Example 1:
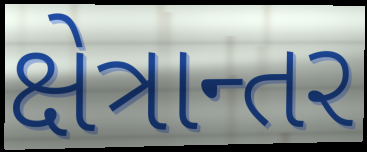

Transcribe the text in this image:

ક્ષેત્રાન્તર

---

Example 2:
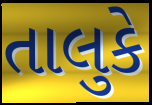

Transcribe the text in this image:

તાલુકે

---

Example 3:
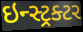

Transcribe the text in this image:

ઇન્સ્ટ્રક્ટર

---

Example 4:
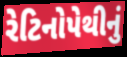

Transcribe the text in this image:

રેટિનોપેથીનું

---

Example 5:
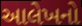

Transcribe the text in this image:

આલેખનો